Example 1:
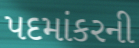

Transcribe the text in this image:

પદમાંકરની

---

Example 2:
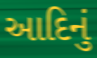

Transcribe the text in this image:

આદિનું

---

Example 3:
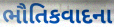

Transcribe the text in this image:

ભૌતિકવાદના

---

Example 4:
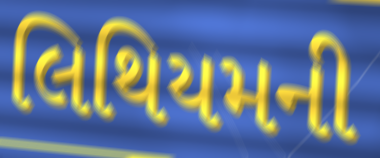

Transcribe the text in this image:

લિથિયમની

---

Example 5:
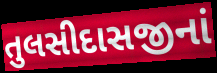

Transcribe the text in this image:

તુલસીદાસજીનાં